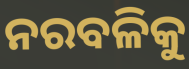
ନରବଳିକୁ